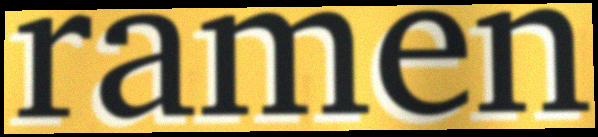
ramen